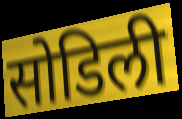
सोडिली